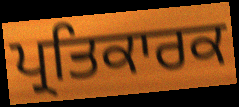
ਪ੍ਰਤਿਕਾਰਕ